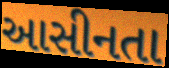
આસીનતા